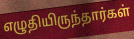
எழுதியிருந்தார்கள்